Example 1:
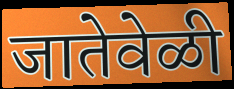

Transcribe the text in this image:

जातेवेळी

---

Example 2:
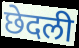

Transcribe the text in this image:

छेदली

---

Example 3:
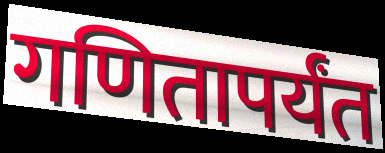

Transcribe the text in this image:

गणितापर्यंत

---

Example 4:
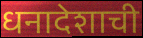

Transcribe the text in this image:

धनादेशाची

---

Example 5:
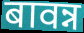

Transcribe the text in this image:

बावन्न